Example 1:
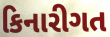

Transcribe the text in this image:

કિનારીગત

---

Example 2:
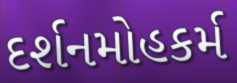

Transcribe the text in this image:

દર્શનમોહકર્મ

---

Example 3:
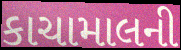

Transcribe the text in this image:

કાચામાલની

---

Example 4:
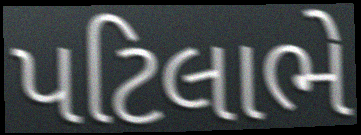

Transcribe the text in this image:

પટિલાભે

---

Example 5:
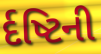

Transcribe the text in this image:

ર્દષ્ટિની